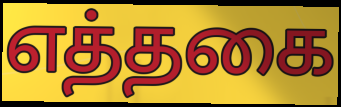
எத்தகை